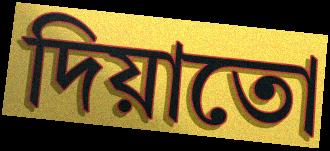
দিয়াতো